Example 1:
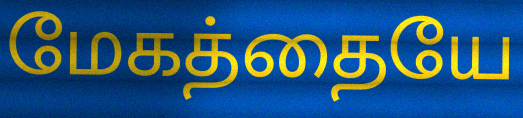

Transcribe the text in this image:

மேகத்தையே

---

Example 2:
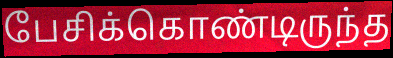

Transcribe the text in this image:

பேசிக்கொண்டிருந்த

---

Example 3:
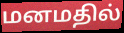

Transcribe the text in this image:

மனமதில்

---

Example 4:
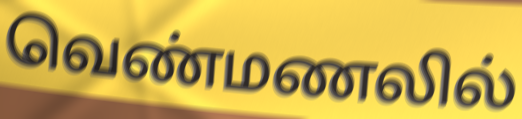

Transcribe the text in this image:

வெண்மணலில்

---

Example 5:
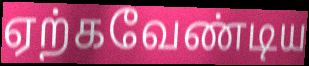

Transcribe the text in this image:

ஏற்கவேண்டிய